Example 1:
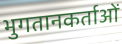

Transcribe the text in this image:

भुगतानकर्ताओं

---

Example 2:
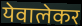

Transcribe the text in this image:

येवालेकर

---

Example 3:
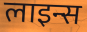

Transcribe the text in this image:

लाइन्स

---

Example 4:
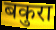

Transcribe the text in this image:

बकुरा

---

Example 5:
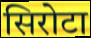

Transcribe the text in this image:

सिरोटा